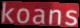
koans